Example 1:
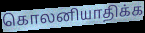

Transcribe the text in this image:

கொலனியாதிக்க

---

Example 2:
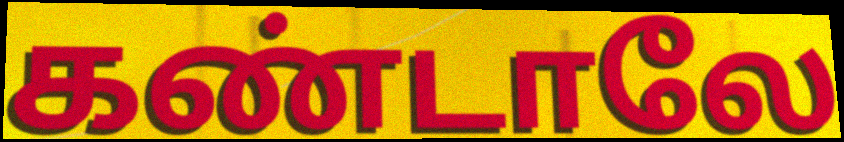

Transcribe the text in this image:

கண்டாலே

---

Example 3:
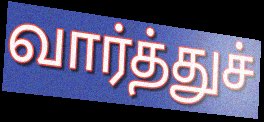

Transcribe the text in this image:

வார்த்துச்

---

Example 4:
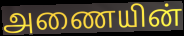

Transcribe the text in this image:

அணையின்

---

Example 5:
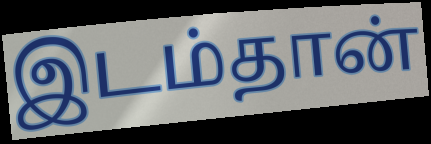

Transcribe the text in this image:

இடம்தான்